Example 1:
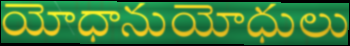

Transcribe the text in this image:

యోధానుయోధులు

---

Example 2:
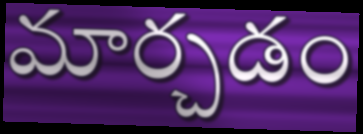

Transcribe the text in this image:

మార్చడం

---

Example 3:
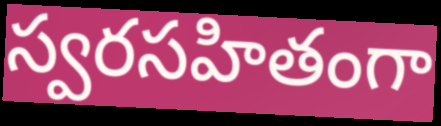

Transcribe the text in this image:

స్వరసహితంగా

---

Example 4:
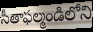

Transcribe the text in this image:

సీతాఫల్మండిలోని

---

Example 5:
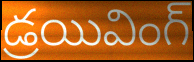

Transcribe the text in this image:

డ్రయివింగ్